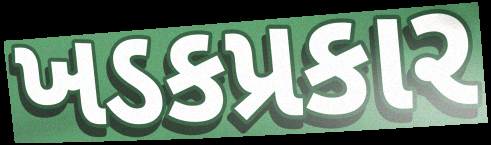
ખડકપ્રકાર